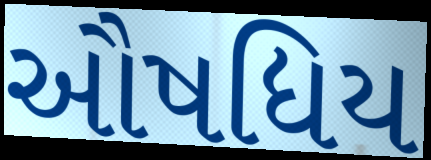
ઔષદ્યિય